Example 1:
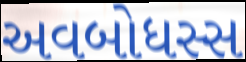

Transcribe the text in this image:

અવબોધસ્સ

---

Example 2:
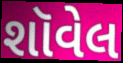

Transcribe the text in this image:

શૉવેલ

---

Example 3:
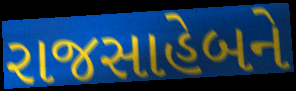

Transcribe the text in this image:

રાજસાહેબને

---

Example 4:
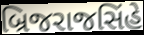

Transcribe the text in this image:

બ્રિજરાજસિંહે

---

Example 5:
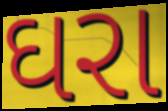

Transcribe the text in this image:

ઘરા